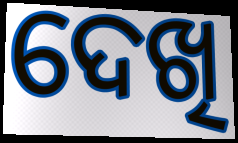
ଦେଖି